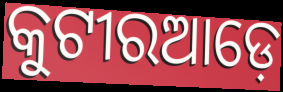
କୁଟୀରଆଡ଼େ